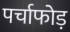
पर्चाफोड़